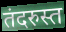
तंदरुस्त